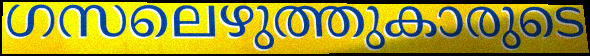
ഗസലെഴുത്തുകാരുടെ